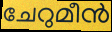
ചേറുമീൻ